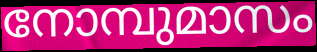
നോമ്പുമാസം